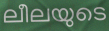
ലീലയുടെ